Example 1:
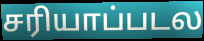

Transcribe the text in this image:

சரியாப்படல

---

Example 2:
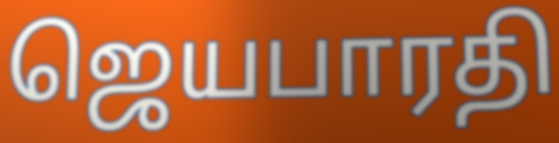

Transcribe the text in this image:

ஜெயபாரதி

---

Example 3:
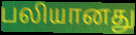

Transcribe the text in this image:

பலியானது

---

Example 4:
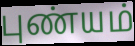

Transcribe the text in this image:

புண்யம்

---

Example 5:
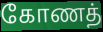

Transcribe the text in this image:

கோணத்